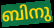
ബിനു